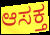
ಆಸಕ್ತ